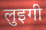
लुइगी